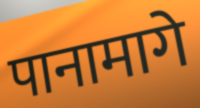
पानामागे